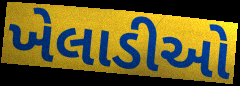
ખેલાડીઓ